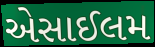
એસાઈલમ